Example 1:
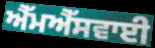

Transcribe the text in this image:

ਐੱਮਐੱਸਵਾਈ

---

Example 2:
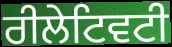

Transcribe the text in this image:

ਰੀਲੇਟਿਵਟੀ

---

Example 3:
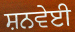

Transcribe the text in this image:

ਸ਼ਨਵੇਈ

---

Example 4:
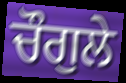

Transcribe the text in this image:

ਚੌਗੁਲੇ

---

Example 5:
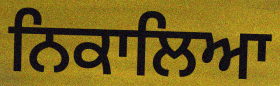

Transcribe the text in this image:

ਨਿਕਾਲਿਆ